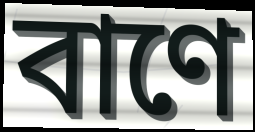
বাণে